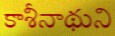
కాశీనాథుని